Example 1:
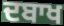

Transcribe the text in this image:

ਦਬਾਖ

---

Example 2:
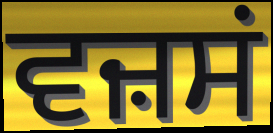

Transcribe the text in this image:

ਵਜ਼ਸਂ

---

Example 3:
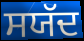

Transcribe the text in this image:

ਸਯੱਦ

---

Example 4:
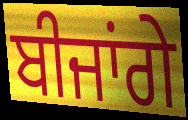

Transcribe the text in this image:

ਬੀਜਾਂਗੇ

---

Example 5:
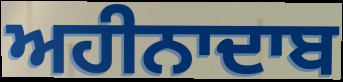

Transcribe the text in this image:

ਅਹੀਨਾਦਾਬ